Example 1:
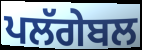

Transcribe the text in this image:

ਪਲੱਗੇਬਲ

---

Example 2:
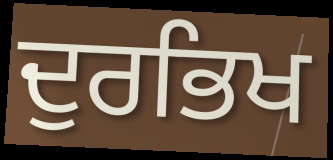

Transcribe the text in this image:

ਦੁਰਭਿਖ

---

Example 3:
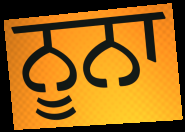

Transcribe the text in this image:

ਨੂਨਾ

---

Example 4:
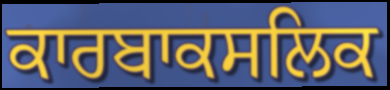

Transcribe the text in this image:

ਕਾਰਬਾਕਸਲਿਕ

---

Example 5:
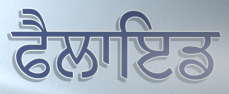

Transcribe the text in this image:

ਫੈਲਾਇਡ